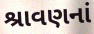
શ્રાવણનાં